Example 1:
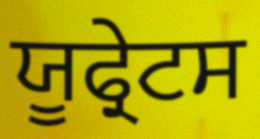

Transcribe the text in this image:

ਯੂਫ੍ਰੇਟਸ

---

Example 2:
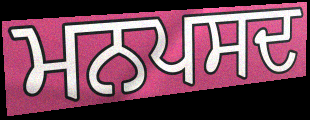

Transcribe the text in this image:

ਮਨਪਸਦ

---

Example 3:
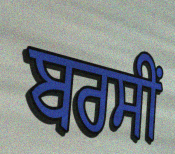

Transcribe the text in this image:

ਬਰਸੀਂ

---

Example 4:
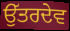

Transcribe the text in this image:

ਉੱਤਰਦੇਵ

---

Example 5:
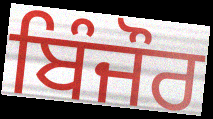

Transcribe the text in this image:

ਬਿੰਜੌਰ